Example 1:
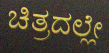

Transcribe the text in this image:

ಚಿತ್ರದಲ್ಲೇ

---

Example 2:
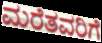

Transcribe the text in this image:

ಮರೆತವರಿಗೆ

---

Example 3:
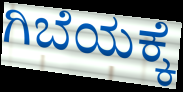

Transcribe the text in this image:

ಗಿಬೆಯಕ್ಕೆ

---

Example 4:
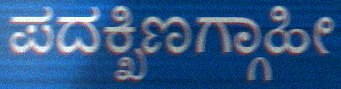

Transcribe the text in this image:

ಪದಕ್ಖಿಣಗ್ಗಾಹೀ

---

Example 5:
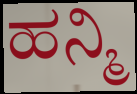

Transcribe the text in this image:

ಹನ್ಮಿ